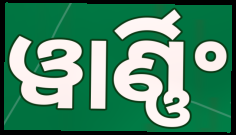
ୱାର୍ଣ୍ଣିଂ